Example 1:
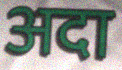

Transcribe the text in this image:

अदा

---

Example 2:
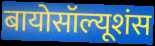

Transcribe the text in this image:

बायोसॉल्यूशंस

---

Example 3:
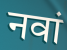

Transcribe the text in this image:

नवां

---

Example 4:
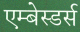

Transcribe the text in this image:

एम्बेस्डर्स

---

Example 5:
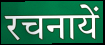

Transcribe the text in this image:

रचनायें